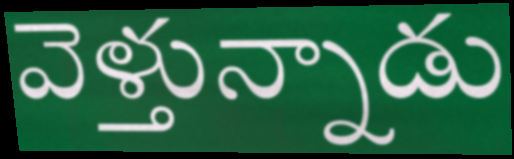
వెళ్తున్నాడు